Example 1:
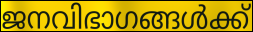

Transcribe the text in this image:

ജനവിഭാഗങ്ങൾക്ക്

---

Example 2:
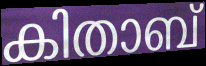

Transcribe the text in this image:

കിതാബ്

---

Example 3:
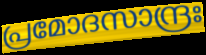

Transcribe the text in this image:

പ്രമോദസാന്ദ്രഃ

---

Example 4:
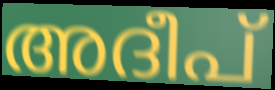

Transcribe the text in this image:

അദീപ്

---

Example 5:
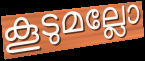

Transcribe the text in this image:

കൂടുമല്ലോ